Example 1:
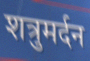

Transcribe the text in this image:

शत्रुमर्दन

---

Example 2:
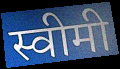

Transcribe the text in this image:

स्वीमी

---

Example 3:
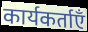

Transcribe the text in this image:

कार्यकर्ताएँ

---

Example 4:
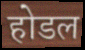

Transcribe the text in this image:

होडल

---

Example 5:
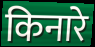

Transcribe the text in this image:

किनारे